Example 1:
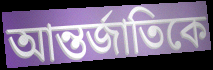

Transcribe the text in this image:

আন্তর্জাতিকে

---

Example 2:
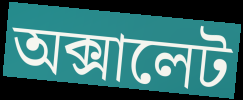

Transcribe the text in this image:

অক্সালেট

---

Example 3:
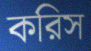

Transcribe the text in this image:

করিস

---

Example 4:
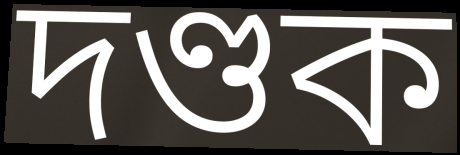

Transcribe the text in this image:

দণ্ডক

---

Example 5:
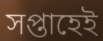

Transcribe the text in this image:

সপ্তাহেই